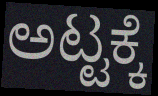
ಅಟ್ಟಕ್ಕೆ